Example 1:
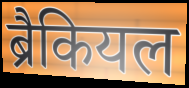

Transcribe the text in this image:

ब्रैकियल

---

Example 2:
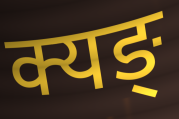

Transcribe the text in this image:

क्यङ्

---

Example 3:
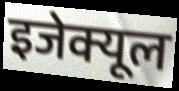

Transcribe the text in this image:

इजेक्यूल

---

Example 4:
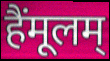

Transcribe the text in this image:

हैंमूलम्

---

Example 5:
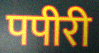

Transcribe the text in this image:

पपीरी